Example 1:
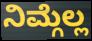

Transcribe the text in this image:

ನಿಮ್ಗೆಲ್ಲ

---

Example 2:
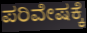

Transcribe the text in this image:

ಪರಿವೇಷಕ್ಕೆ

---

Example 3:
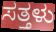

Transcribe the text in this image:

ಸತ್ತಳು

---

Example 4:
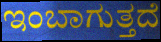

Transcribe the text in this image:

ಇಂಬಾಗುತ್ತದೆ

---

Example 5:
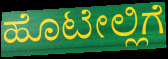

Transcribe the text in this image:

ಹೊಟೇಲ್ಲಿಗೆ